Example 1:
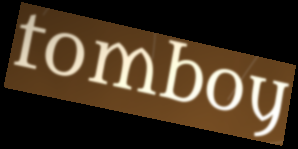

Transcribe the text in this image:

tomboy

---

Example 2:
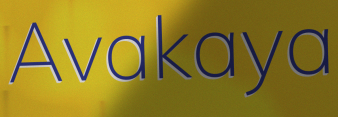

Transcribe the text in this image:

Avakaya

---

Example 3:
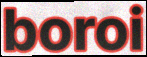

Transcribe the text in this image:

boroi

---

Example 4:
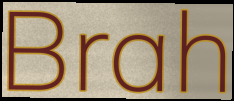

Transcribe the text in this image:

Brah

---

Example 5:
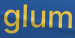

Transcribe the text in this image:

glum